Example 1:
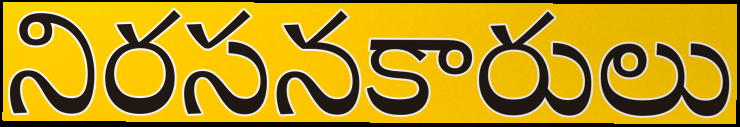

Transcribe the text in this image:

నిరసనకారులు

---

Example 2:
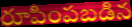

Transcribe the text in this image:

రూపింపబడిన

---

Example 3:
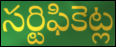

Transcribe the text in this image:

సర్టిఫికెట్ల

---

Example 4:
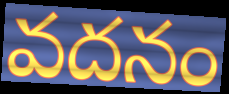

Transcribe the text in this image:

వదనం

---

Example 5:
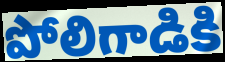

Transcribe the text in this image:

పోలిగాడికి